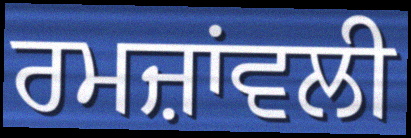
ਰਮਜ਼ਾਂਵਲੀ